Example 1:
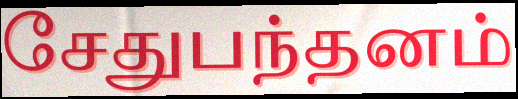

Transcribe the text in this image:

சேதுபந்தனம்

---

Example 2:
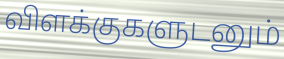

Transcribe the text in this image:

விளக்குகளுடனும்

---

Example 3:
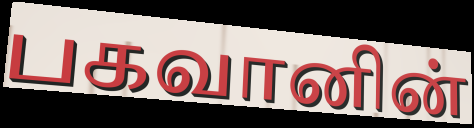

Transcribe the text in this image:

பகவானின்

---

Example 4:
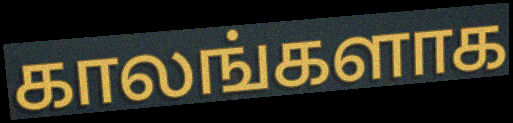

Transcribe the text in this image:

காலங்களாக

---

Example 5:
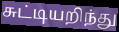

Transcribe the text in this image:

சுட்டியறிந்து